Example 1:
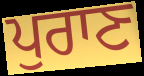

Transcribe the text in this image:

ਪੁਰਾਣ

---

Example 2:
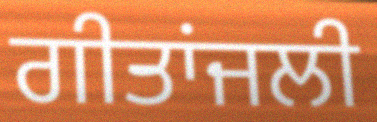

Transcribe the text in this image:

ਗੀਤਾਂਜਲੀ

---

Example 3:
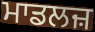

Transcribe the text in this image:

ਮਾਡਲਜ਼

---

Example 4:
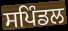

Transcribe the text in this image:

ਸਪਿੰਡਲ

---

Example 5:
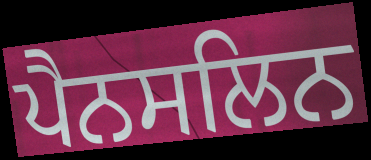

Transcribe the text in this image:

ਪੈਨਸਲਿਨ